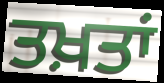
ਤਖ਼ਤਾਂ